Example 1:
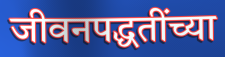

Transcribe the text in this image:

जीवनपद्धतींच्या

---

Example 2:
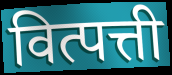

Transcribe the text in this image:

वित्पत्ती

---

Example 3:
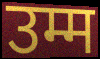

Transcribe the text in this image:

उम्म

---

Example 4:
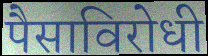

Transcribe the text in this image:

पैसाविरोधी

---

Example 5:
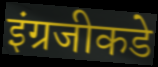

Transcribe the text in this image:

इंग्रजीकडे